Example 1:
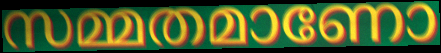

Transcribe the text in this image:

സമ്മതമാണോ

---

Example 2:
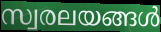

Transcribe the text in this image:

സ്വരലയങ്ങൾ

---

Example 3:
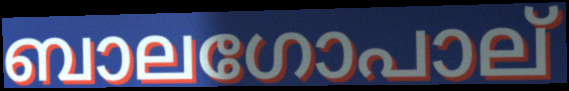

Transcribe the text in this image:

ബാലഗോപാല്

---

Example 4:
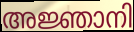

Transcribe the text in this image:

അജ്ഞാനി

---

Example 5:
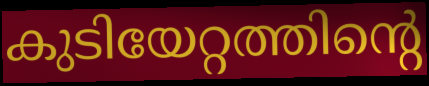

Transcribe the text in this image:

കുടിയേറ്റത്തിന്റെ